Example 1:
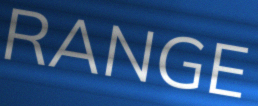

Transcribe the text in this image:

RANGE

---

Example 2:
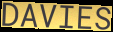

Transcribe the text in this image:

DAVIES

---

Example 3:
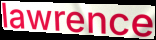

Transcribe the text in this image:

lawrence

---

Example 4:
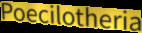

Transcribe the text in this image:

Poecilotheria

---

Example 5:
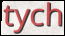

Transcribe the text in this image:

tych